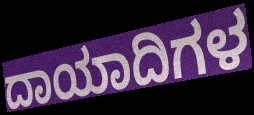
ದಾಯಾದಿಗಳ